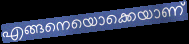
എങ്ങനെയൊക്കെയാണ്